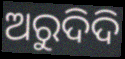
ଅରୁଦିଦି